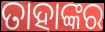
ତାହାଙ୍କର